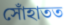
সোঁহাতত